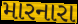
મારનારા